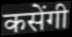
कसेंगी